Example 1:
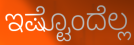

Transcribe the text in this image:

ಇಷ್ಟೊಂದೆಲ್ಲ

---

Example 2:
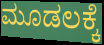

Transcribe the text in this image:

ಮೂಡಲಕ್ಕೆ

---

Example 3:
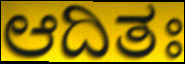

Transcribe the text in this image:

ಆದಿತಃ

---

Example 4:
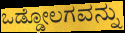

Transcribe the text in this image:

ಒಡ್ಡೋಲಗವನ್ನು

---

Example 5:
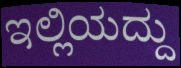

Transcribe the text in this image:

ಇಲ್ಲಿಯದ್ದು